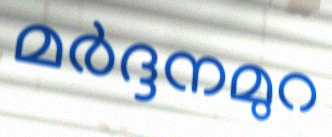
മർദ്ദനമുറ